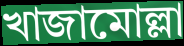
খাজামোল্লা